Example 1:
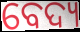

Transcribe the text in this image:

ବେଦ୍ୟ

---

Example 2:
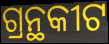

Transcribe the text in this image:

ଗ୍ରନ୍ଥକୀଟ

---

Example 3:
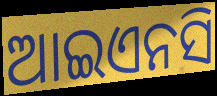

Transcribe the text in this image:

ଆଇଏନସି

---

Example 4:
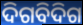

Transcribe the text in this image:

ଦିଗବିଦିଗ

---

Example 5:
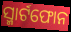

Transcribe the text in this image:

ସ୍ମାର୍ଟଫୋନ